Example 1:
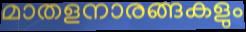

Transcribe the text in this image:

മാതളനാരങ്ങകളും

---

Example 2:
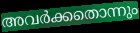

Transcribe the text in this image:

അവർക്കതൊന്നും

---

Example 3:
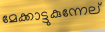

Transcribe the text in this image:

മേക്കാട്ടുകുന്നേല്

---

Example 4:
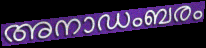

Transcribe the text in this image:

അനാഡംബരം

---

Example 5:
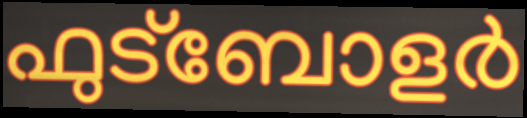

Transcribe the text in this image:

ഫുട്ബോളർ